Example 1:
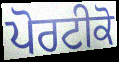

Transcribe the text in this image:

ਪੋਰਟੀਕੋ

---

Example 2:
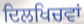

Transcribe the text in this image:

ਦਿਲਖਿਚਵਾਂ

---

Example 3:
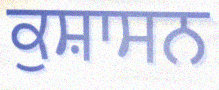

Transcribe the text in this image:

ਕੁਸ਼ਾਸਨ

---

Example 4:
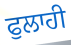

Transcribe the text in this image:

ਫੁਲਾਹੀ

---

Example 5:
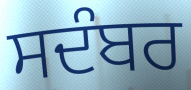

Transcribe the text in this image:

ਸਦੰਬਰ